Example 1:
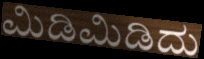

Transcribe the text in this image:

ಮಿಡಿಮಿಡಿದು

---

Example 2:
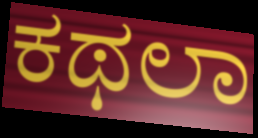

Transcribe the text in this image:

ಕಥಲಾ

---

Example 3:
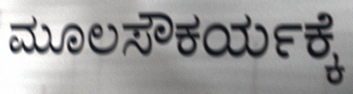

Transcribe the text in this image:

ಮೂಲಸೌಕರ್ಯಕ್ಕೆ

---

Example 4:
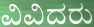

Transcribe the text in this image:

ವಿವಿದರು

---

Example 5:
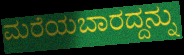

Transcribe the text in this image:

ಮರೆಯಬಾರದ್ದನ್ನು